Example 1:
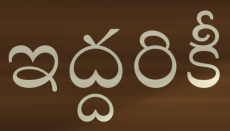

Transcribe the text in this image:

ఇద్దరికీ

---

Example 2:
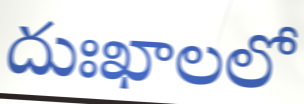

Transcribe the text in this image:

దుఃఖాలలో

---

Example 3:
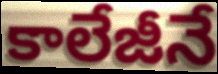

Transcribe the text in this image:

కాలేజీనే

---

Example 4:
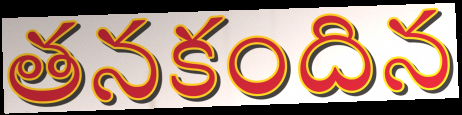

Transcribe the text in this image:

తనకందిన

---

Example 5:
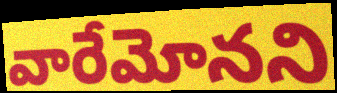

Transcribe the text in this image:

వారేమోనని